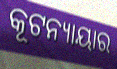
କୂଟନ୍ୟାୟାର